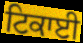
ਟਿਕਾਈ